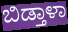
ಬಿಡ್ತಾಳಾ